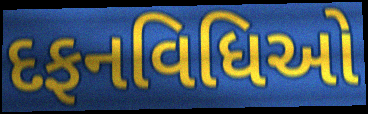
દફનવિધિઓ